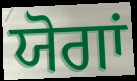
ਯੋਗਾਂ